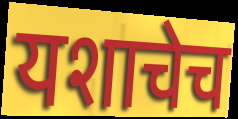
यशाचेच